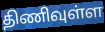
திணிவுள்ள